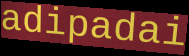
adipadai